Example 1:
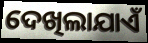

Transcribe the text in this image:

ଦେଖିଲାଯାଏଁ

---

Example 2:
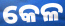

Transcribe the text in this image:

କେଳ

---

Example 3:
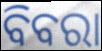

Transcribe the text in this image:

ବିବରା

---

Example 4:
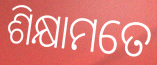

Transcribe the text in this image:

ଶିକ୍ଷାମତେ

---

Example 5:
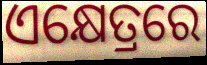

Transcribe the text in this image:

ଏକ୍ଷେତ୍ରରେ